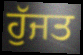
ਹੁੱਜਤ